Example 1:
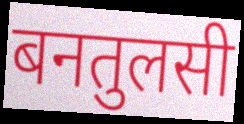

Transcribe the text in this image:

बनतुलसी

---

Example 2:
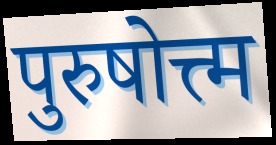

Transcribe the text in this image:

पुरुषोत्त्म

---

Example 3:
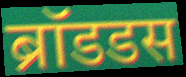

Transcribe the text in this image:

ब्रॉडडस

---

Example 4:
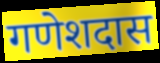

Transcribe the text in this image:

गणेशदास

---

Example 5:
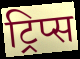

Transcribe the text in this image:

ट्रिप्स